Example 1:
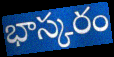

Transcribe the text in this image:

భాస్కరం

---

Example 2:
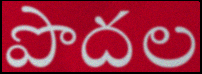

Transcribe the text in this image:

పొదల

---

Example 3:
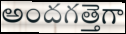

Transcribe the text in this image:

అందగత్తెగా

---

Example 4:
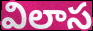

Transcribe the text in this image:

విలాస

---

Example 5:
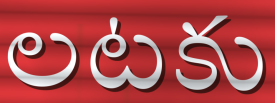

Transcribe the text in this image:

లటకు